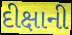
દીક્ષાની